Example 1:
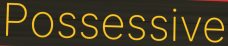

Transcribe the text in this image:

Possessive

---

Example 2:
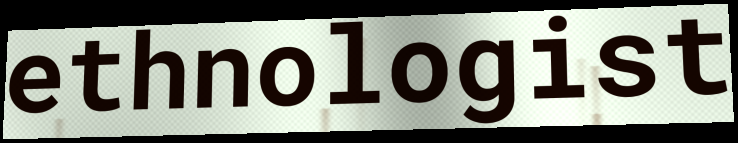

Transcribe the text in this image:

ethnologist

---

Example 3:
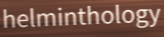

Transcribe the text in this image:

helminthology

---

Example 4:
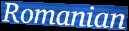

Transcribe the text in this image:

Romanian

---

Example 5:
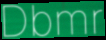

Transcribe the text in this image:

Dbmr